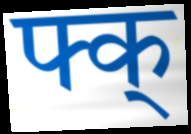
फ्क्